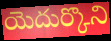
యెదుర్కొని